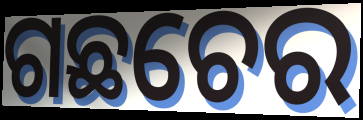
ଗଛଚେର